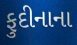
ફુદીનાના